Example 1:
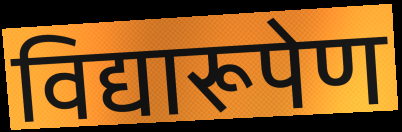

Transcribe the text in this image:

विद्यारूपेण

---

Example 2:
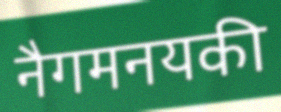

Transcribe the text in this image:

नैगमनयकी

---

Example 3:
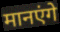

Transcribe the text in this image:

मानएंगे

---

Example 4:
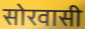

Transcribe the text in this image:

सोरवासी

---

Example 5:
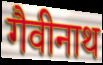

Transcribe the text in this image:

गैवीनाथ